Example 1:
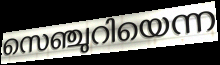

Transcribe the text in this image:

സെഞ്ചുറിയെന്ന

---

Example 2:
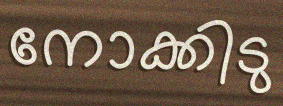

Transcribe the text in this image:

നോക്കിടു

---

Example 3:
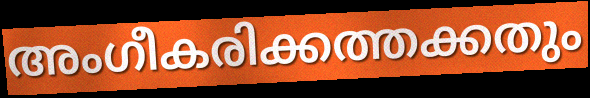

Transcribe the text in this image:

അംഗീകരിക്കത്തക്കതും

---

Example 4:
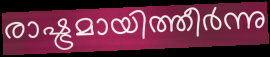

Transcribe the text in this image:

രാഷ്ട്രമായിത്തീർന്നു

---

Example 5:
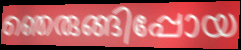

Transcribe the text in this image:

ഞെരുങ്ങിപ്പോയ